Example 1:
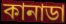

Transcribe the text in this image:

কানাডা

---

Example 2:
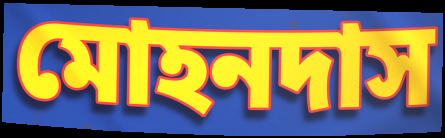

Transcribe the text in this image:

মোহনদাস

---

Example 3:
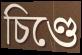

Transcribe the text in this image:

চিণ্ডে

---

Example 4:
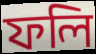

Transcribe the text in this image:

ফলি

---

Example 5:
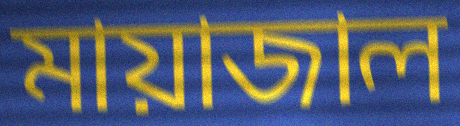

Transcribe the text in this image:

মায়াজাল